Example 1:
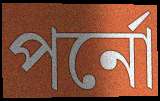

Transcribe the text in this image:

পর্নো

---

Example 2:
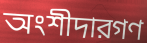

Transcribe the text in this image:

অংশীদারগণ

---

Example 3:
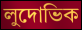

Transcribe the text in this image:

লুদোভিক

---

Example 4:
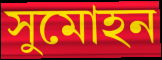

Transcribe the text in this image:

সুমোহন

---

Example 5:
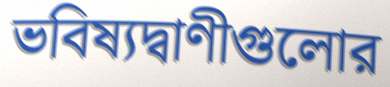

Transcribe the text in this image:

ভবিষ্যদ্বাণীগুলোর